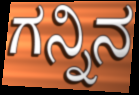
ಗನ್ನಿನ